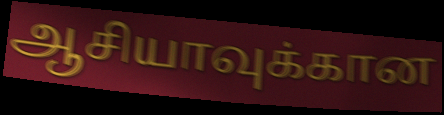
ஆசியாவுக்கான